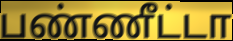
பண்ணீட்டா